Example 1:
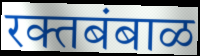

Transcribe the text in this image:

रक्‍तबंबाळ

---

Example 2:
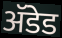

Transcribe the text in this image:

ॲडेड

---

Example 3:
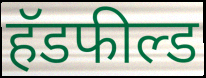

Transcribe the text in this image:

हॅडफील्ड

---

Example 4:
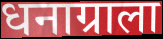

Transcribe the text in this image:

धनाग्राला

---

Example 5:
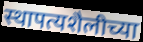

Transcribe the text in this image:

स्थापत्यशैलीच्या